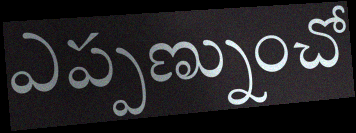
ఎప్పణ్నుంచో